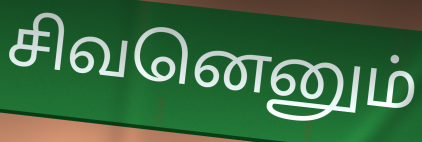
சிவனெனும்